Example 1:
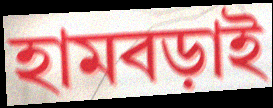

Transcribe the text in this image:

হামবড়াই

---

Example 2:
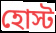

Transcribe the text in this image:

হোস্ট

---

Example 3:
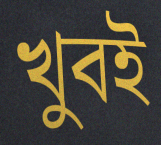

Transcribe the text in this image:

খুবই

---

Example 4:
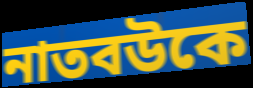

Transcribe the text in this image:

নাতবউকে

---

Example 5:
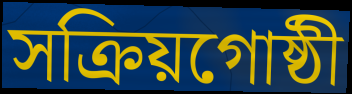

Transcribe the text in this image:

সক্রিয়গোষ্ঠী